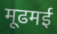
मूढमई